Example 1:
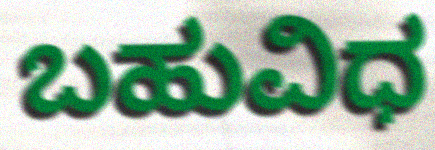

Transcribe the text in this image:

ಬಹುವಿಧ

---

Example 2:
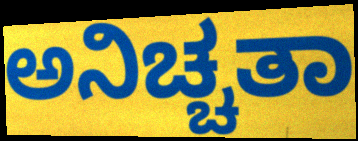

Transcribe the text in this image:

ಅನಿಚ್ಚತಾ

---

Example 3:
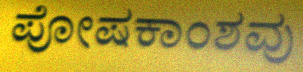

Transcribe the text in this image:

ಪೋಷಕಾಂಶವು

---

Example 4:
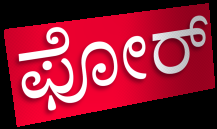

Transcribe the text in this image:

ಫೋರ್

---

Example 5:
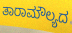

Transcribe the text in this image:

ತಾರಾಮೌಲ್ಯದ